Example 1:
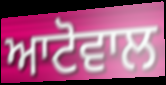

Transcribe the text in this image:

ਆਟੋਵਾਲ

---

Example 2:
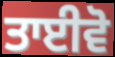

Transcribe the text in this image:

ਤਾਈਵੋ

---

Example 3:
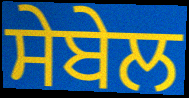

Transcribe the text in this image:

ਸੇਬੇਲ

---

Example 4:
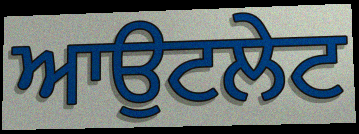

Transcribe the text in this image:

ਆਉਟਲੇਟ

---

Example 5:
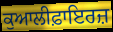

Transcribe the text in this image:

ਕੁਆਲੀਫ਼ਾਇਰਜ਼